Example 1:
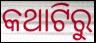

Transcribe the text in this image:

କଥାଟିରୁ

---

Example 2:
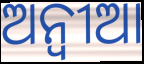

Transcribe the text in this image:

ଅନ୍ବୀଆ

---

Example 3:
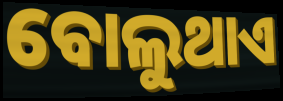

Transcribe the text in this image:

ବୋଲୁଥାଏ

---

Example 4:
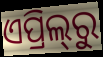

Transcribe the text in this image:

ଏପ୍ରିଲ୍‌ରୁ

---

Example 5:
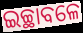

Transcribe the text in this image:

ଇଚ୍ଛାବଳେ